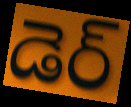
డెర్